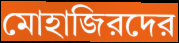
মোহাজিরদের